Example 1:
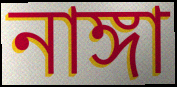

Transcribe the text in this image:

নাঙ্গা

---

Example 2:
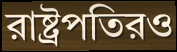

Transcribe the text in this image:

রাষ্ট্রপতিরও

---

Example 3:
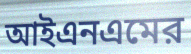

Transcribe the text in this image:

আইএনএমের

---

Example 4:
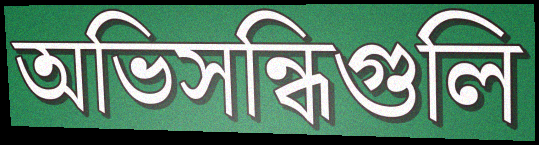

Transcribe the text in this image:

অভিসন্ধিগুলি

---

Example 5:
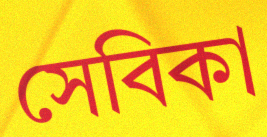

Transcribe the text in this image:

সেবিকা